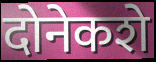
दोनेकशे